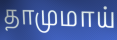
தாமுமாய்